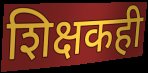
शिक्षकही